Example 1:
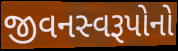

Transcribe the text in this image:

જીવનસ્વરૂપોનો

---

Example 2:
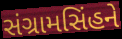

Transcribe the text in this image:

સંગ્રામસિંહને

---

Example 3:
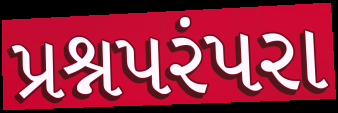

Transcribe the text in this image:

પ્રશ્નપરંપરા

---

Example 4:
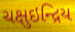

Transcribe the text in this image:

ચક્ષુઇન્દ્રિય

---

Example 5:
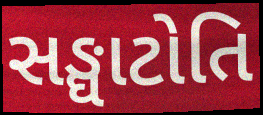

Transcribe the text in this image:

સઙ્ઘાટોતિ